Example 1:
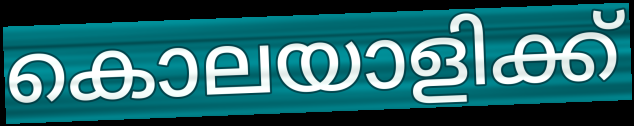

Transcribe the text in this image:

കൊലയാളിക്ക്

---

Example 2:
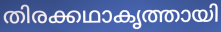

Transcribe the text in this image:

തിരക്കഥാകൃത്തായി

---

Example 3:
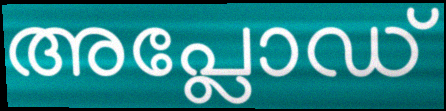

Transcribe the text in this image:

അപ്ലോഡ്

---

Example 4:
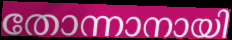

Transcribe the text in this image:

തോന്നാനായി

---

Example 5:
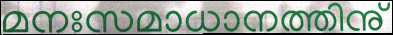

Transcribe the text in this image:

മനഃസമാധാനത്തിനു്